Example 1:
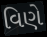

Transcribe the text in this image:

વિણે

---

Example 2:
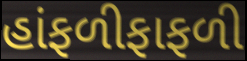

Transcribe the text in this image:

હાંફળીફાફળી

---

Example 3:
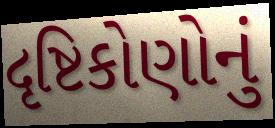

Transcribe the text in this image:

દૃષ્ટિકોણોનું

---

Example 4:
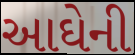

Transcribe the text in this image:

આઘેની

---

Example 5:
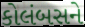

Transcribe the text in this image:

કોલંબસને